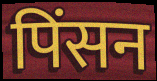
पिंसन